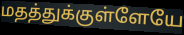
மதத்துக்குள்ளேயே